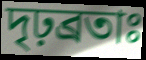
দৃঢ়ব্রতাঃ